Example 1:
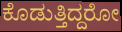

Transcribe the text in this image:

ಕೊಡುತ್ತಿದ್ದರೋ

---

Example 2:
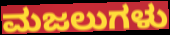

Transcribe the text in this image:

ಮಜಲುಗಳು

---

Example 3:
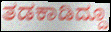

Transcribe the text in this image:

ತಡಕಾಡಿದ್ದೂ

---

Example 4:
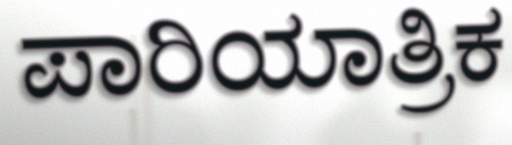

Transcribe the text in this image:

ಪಾರಿಯಾತ್ರಿಕ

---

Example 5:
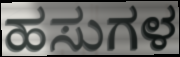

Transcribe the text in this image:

ಹಸುಗಳ